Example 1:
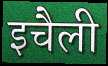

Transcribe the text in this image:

इचैली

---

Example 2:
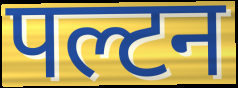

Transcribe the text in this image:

पल्टन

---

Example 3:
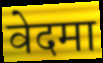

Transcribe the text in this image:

वेदमा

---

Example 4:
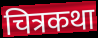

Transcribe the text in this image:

चित्रकथा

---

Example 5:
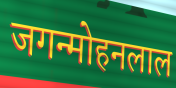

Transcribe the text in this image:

जगन्मोहनलाल